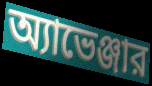
অ্যাভেঞ্জার